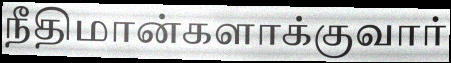
நீதிமான்களாக்குவார்